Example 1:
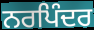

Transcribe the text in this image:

ਨਰਪਿੰਦਰ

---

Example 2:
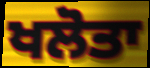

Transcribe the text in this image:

ਖਲੋਤਾ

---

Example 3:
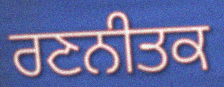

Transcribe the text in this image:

ਰਣਨੀਤਕ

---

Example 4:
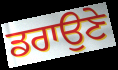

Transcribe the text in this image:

ਡਰਾਉਣੇ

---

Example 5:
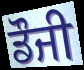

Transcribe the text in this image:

ਡੌਜੀ